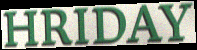
HRIDAY